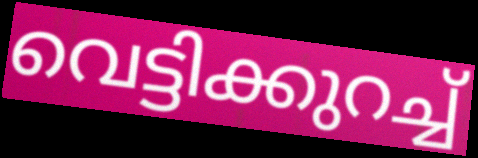
വെട്ടിക്കുറച്ച്